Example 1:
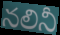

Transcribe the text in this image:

నలినీ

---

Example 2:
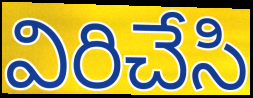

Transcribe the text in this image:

విరిచేసి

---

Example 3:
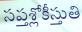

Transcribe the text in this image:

సప్తశ్లోకీస్తుతి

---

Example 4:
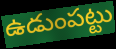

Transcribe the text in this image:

ఉడుంపట్టు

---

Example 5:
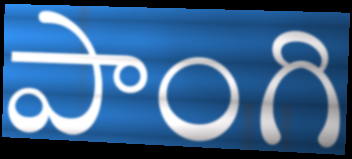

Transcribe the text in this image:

పాంగి